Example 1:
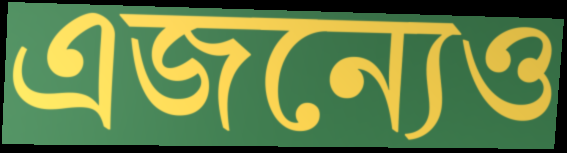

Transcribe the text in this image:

এজন্যেও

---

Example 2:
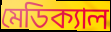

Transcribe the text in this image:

মেডিক্যাল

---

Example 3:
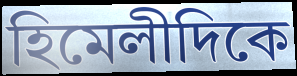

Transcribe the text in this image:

হিমেলীদিকে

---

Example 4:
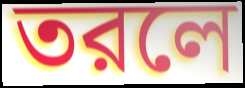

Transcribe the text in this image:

তরলে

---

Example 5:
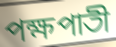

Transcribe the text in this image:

পক্ষপাতী